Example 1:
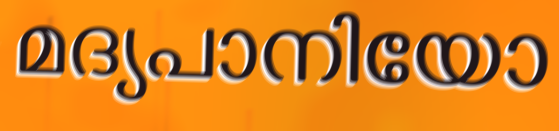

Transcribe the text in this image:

മദ്യപാനിയോ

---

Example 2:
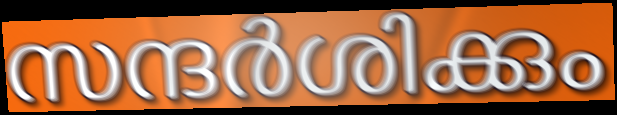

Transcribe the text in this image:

സന്ദർശിക്കും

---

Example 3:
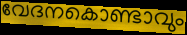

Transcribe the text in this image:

വേദനകൊണ്ടാവും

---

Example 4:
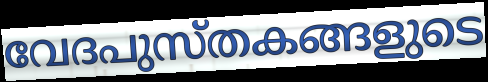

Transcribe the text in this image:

വേദപുസ്തകങ്ങളുടെ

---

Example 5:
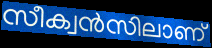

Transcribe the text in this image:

സീക്വൻസിലാണ്